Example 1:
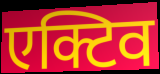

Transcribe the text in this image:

एक्टिव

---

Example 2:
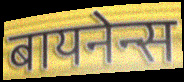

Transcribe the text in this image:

बायनेन्स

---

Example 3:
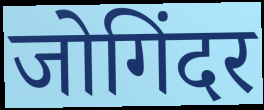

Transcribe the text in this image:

जोगिंदर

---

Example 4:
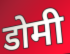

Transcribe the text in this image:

डोमी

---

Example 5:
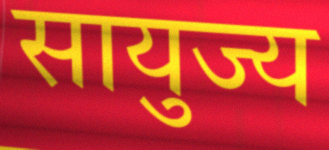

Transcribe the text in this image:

सायुज्य